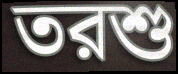
তরশু